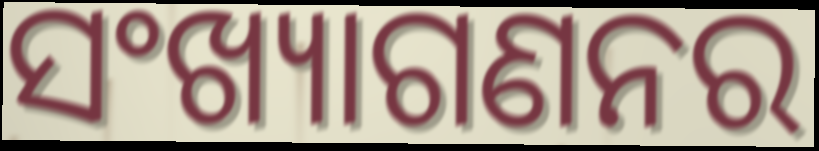
ସଂଖ୍ୟାଗଣନର